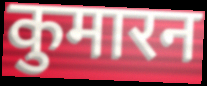
कुमारन